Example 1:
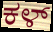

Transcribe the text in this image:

ಕಳ್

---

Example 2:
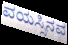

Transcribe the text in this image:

ವಯಸ್ಸಿನವ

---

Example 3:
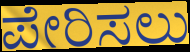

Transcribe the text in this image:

ಪೇರಿಸಲು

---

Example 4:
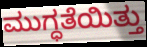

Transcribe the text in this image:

ಮುಗ್ಧತೆಯಿತ್ತು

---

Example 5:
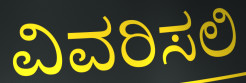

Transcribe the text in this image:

ವಿವರಿಸಲಿ